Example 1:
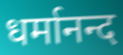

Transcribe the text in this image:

धर्मानन्द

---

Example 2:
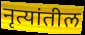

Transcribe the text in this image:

नृत्यांतील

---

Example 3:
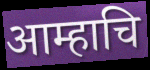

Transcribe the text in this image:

आम्हाचि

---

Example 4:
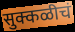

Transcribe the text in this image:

सुक्कळीचं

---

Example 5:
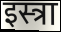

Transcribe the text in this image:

इस्त्रा